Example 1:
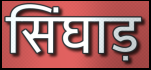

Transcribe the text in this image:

सिंघाड़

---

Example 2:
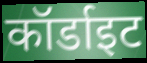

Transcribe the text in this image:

कॉर्डाइट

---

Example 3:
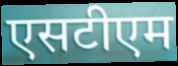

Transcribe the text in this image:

एसटीएम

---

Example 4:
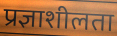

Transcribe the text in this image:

प्रज्ञाशीलता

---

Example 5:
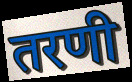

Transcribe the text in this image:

तरणी